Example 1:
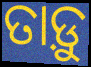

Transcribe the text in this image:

ତାଡ଼ୁ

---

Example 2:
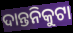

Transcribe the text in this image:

ଦାନ୍ତନିକୁଟା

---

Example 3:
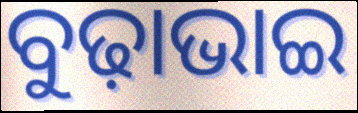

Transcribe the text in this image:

ବୁଢ଼ାଭାଇ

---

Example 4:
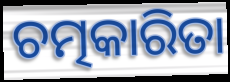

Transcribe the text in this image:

ଚତ୍ମକାରିତା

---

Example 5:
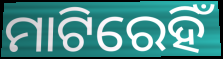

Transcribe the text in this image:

ମାଟିରେହିଁ